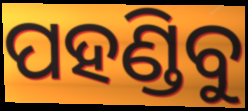
ପହଣ୍ଡିବୁ